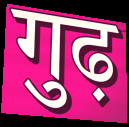
गुढ़